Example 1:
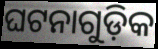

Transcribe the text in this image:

ଘଟନାଗୁଡ଼ିକ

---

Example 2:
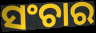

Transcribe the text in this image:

ସଂଚାର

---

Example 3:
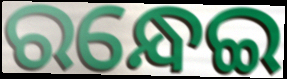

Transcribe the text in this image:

ରନ୍ଧେଇ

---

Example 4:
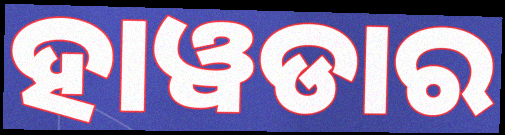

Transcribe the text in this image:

ହାୱଡାର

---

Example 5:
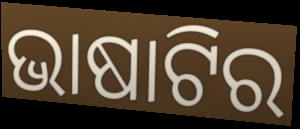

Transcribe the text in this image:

ଭାଷାଟିର